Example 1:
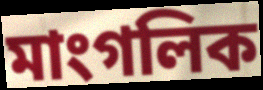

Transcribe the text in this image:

মাংগলিক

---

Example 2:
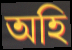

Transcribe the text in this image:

অহি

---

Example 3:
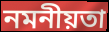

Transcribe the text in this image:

নমনীয়তা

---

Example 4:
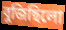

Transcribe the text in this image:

বুজিছিলো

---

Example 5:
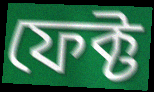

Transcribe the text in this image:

ফেক্ট